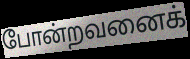
போன்றவனைக்